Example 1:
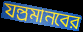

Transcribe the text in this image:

যন্ত্রমানবের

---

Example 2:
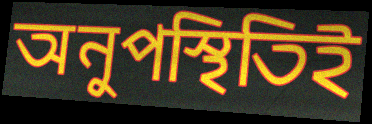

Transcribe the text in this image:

অনুপস্থিতিই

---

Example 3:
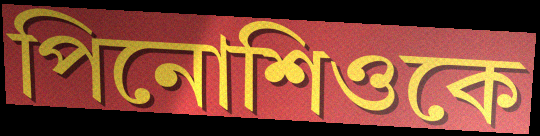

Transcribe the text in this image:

পিনোশিওকে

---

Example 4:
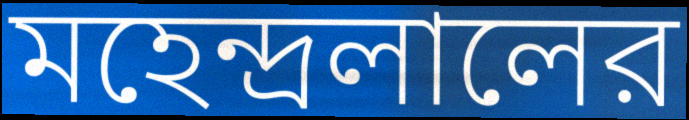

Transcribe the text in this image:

মহেন্দ্রলালের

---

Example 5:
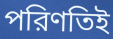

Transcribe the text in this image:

পরিণতিই